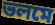
ভলমে